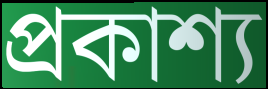
প্ৰকাশ্য